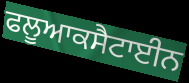
ਫਲੂਆਕਸੈਟਾਈਨ